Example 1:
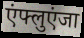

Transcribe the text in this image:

एंफ्लुएंजा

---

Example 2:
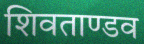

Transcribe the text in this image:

शिवताण्डव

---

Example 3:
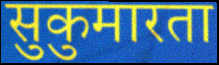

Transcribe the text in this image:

सुकुमारता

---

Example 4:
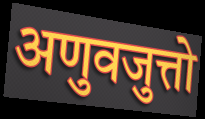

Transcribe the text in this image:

अणुवजुत्तो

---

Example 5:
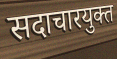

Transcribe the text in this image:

सदाचारयुक्त